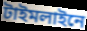
টাইমলাইনে